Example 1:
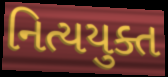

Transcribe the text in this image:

નિત્યયુક્ત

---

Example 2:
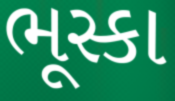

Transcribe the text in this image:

ભૂસ્કા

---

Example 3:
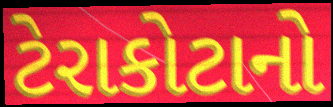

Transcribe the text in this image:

ટેરાકોટાનો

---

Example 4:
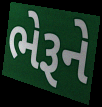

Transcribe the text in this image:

ભેરૂને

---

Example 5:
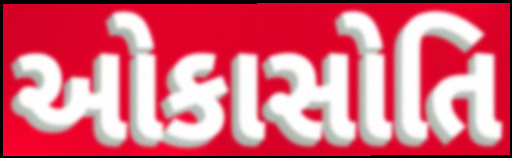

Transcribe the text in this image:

ઓકાસોતિ